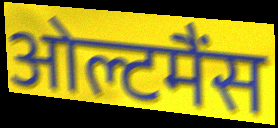
ओल्टमैंस